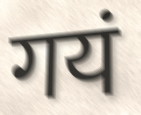
गयं